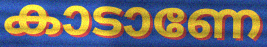
കാടാണേ